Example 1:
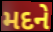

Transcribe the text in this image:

મદને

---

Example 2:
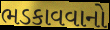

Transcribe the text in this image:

ભડકાવવાનો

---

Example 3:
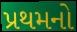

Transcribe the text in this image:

પ્રથમનો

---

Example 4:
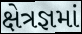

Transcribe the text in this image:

ક્ષેત્રજ્ઞમાં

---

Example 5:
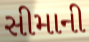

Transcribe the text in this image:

સીમાની